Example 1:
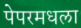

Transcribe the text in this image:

पेपरमधला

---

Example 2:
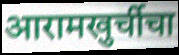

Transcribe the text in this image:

आरामखुर्चीचा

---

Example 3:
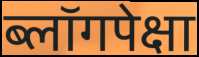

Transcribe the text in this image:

ब्लॉगपेक्षा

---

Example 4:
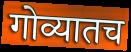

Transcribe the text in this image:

गोव्यातच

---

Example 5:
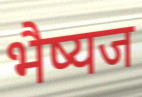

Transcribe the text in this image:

भैष्यज